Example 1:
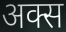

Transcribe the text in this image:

अक्स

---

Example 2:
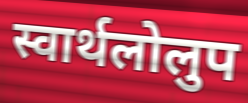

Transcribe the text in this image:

स्वार्थलोलुप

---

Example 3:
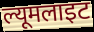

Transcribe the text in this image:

ल्यूमलाइट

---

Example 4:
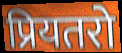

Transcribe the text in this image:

प्रियतरो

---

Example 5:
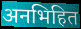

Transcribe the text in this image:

अनभिहित